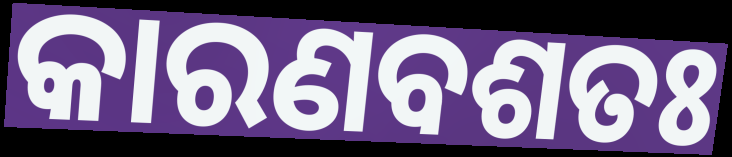
କାରଣବଶତଃ